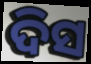
ଦିସ